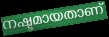
നഷ്ടമായതാണ്